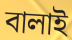
বালাই